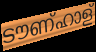
ടൗണ്ഹാള്